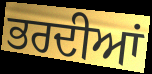
ਭਰਦੀਆਂ